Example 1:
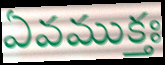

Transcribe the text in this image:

ఏవముక్తః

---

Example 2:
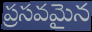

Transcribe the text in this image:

ప్రసవమైన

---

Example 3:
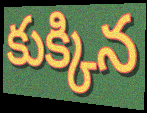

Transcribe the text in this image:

కుక్కిన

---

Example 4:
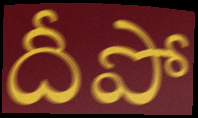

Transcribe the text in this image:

దీపో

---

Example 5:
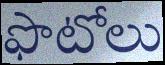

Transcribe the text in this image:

ఫొటోలు